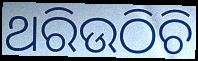
ଥରିଉଠିଚି